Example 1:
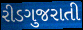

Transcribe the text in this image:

રીડગુજરાતી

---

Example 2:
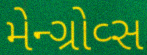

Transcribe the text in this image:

મેન્ગ્રોવ્સ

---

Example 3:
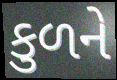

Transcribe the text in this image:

કુળને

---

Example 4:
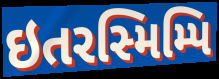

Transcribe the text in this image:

ઇતરસ્મિમ્પિ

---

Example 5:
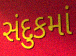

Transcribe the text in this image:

સંદુકમાં